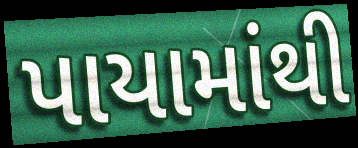
પાયામાંથી